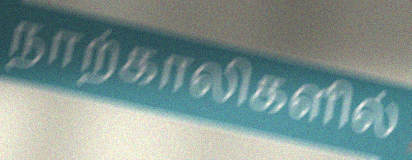
நாற்காலிகளில்